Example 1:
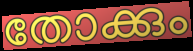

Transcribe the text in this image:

തോക്കും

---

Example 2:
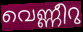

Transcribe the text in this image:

വെണ്ണീറു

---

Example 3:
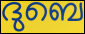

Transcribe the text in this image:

ദുബെ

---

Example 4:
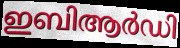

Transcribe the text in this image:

ഇബിആർഡി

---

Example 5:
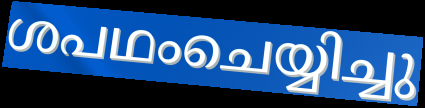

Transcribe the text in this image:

ശപഥംചെയ്യിച്ചു